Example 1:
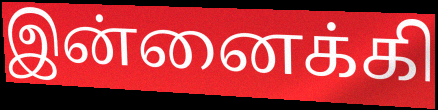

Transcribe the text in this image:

இன்னைக்கி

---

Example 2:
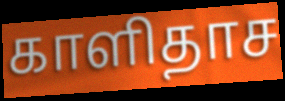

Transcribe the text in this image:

காளிதாச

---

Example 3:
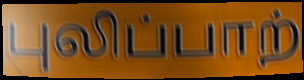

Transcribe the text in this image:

புலிப்பாற்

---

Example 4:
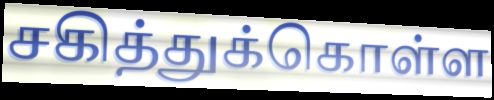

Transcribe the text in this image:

சகித்துக்கொள்ள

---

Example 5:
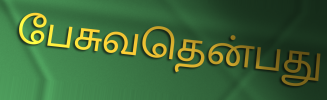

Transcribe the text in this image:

பேசுவதென்பது